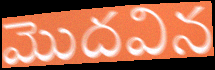
మొదవిన